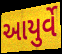
આયુર્વે